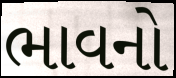
ભાવનો